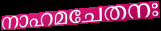
നാഹമചേതനഃ